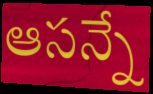
ఆసన్నే